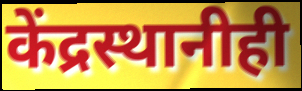
केंद्रस्थानीही